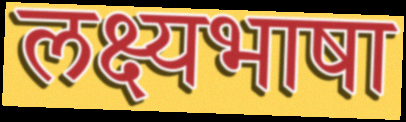
लक्ष्यभाषा